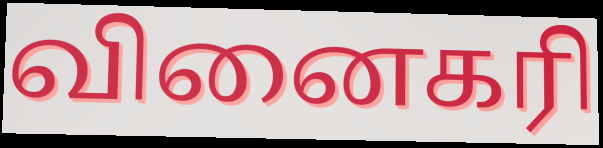
வினைகரி